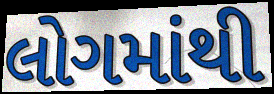
લોગમાંથી